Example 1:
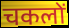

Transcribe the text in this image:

चकलों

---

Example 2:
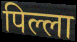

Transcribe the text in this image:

पिल्ला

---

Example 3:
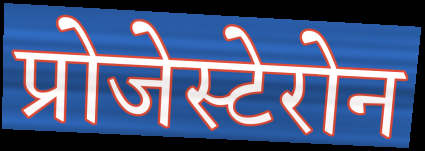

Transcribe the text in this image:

प्रोजेस्टेरोन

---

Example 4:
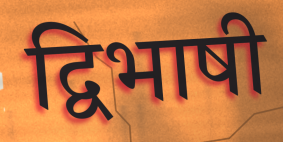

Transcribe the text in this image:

द्विभाषी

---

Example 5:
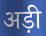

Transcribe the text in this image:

अड़ी